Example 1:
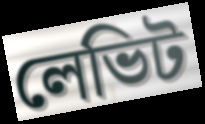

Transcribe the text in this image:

লেভিট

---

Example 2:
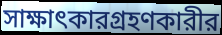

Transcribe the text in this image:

সাক্ষাৎকারগ্রহণকারীর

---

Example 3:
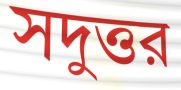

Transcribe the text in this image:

সদুত্তর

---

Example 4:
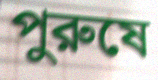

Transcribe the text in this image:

পুরুষে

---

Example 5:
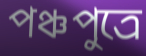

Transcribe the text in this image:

পঞ্চপুত্রে